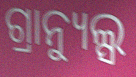
ଗ୍ରାନ୍ୟୁଲ୍ସ